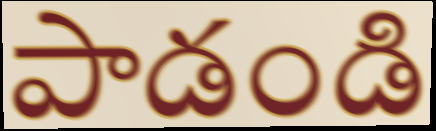
పాడండి